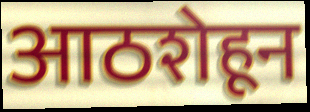
आठशेहून